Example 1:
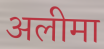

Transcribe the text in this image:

अलीमा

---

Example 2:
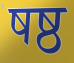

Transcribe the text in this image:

षष्ठ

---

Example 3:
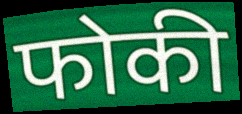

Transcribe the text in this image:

फोकी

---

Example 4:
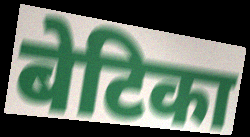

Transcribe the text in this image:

बेटिका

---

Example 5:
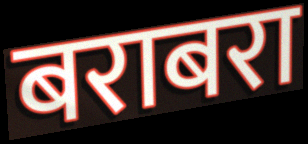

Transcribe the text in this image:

बराबरा